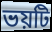
ভয়টি